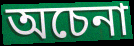
অচেনা